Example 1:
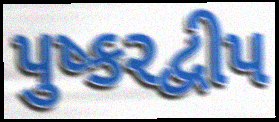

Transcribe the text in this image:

પુષ્કરદ્વીપ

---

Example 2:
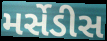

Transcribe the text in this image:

મર્સેડીસ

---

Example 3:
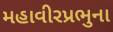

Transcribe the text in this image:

મહાવીરપ્રભુના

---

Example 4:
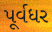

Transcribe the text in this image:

પૂર્વધર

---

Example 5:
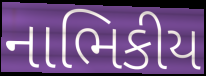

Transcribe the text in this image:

નાભિકીય